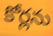
కోర్లను